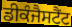
ਡੀਕੰਜੈਸਟੈਂਟ